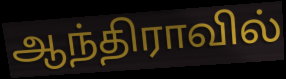
ஆந்திராவில்